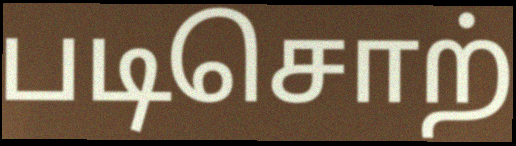
படிசொற்